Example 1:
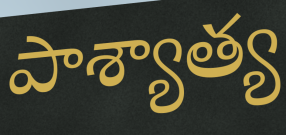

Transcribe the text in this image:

పాశ్యాత్య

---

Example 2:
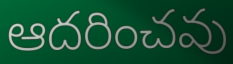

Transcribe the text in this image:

ఆదరించవు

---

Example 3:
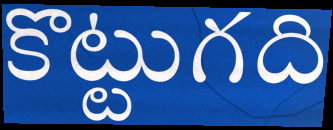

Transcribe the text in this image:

కొట్టుగది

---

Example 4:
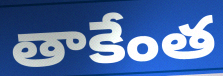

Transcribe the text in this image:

తాకేంత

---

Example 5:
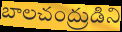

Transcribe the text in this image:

బాలచంద్రుడిని